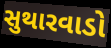
સુથારવાડો